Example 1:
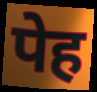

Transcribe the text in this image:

पेह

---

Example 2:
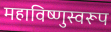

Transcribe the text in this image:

महाविष्णुस्वरूप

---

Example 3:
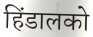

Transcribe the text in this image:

हिंडालको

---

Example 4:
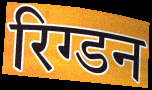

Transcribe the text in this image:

रिग्डन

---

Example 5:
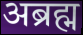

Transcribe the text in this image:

अब्रह्म